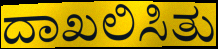
ದಾಖಲಿಸಿತು